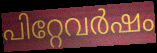
പിറ്റേവർഷം